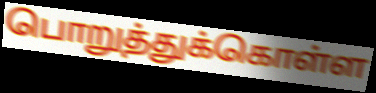
பொறுத்துக்கொள்ள